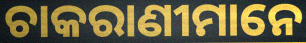
ଚାକରାଣୀମାନେ